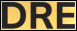
DRE